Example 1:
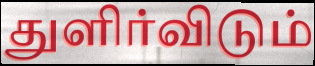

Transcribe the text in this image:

துளிர்விடும்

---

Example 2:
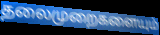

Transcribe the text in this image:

தலைமுறைகளையும்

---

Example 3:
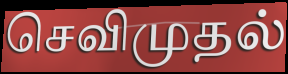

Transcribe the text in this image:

செவிமுதல்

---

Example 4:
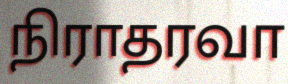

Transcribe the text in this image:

நிராதரவா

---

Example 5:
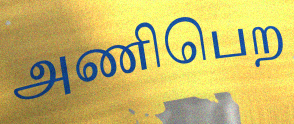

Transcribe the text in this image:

அணிபெற